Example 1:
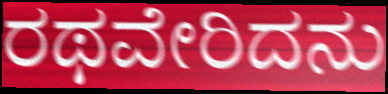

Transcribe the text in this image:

ರಥವೇರಿದನು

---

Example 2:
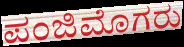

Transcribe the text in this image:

ಪಂಜಿಮೊಗರು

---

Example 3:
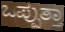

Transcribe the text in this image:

ಒಪ್ಪುತ್ತಾ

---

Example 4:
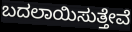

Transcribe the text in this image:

ಬದಲಾಯಿಸುತ್ತೇವೆ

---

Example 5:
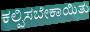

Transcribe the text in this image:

ಕಲ್ಪಿಸಬೇಕಾಯಿತು